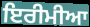
ਇਰੀਮੀਆ